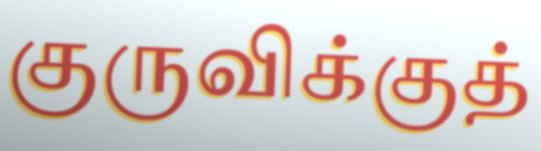
குருவிக்குத்